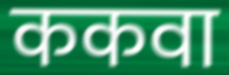
ककवा